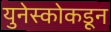
युनेस्कोकडून